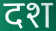
दश